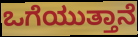
ಒಗೆಯುತ್ತಾನೆ